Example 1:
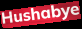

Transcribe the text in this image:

Hushabye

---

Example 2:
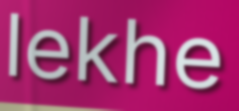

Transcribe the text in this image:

lekhe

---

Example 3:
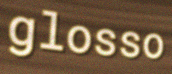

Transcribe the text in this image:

glosso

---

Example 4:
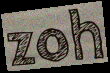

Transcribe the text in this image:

zoh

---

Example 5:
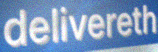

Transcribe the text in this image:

delivereth